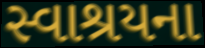
સ્વાશ્રયના